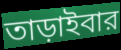
তাড়াইবার